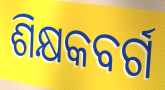
ଶିକ୍ଷକବର୍ଗ